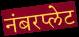
नंबरप्लेट